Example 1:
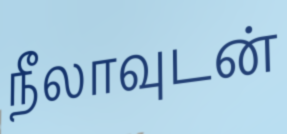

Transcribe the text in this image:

நீலாவுடன்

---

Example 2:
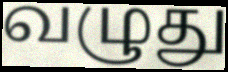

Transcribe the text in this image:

வழுது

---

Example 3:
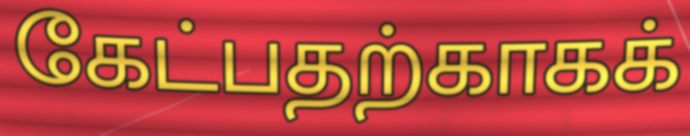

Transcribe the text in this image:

கேட்பதற்காகக்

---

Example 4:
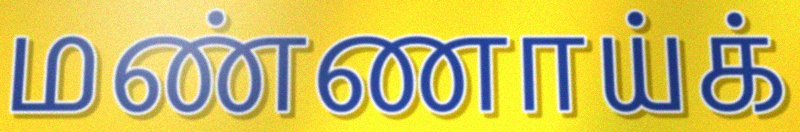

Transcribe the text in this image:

மண்ணாய்க்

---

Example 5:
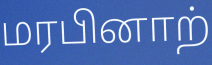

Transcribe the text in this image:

மரபினாற்